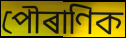
পৌৰাণিক